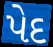
પેદ